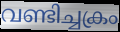
വണ്ടിച്ചക്രം